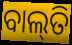
ବାଲ୍‌ତି